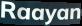
Raayan